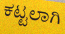
ಕಟ್ಟಲಾಗಿ